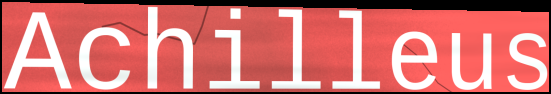
Achilleus